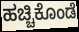
ಹಚ್ಚಿಕೊಂಡೆ